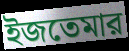
ইজতেমার